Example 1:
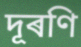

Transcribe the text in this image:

দূৰণি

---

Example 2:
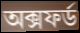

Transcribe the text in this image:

অক্সফৰ্ড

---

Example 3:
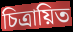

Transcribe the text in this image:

চিত্ৰায়িত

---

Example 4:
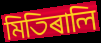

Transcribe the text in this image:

মিতিৰালি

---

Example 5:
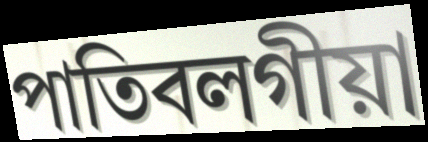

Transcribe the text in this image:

পাতিবলগীয়া